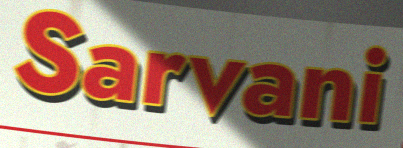
Sarvani